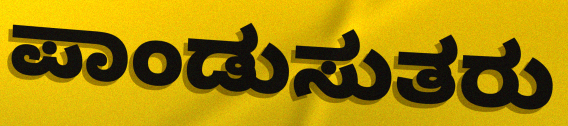
ಪಾಂಡುಸುತರು